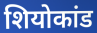
शियोकांड